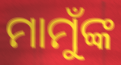
ମାମୁଁଙ୍କ